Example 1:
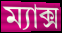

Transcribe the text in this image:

ম্যাক্স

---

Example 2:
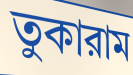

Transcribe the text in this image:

তুকারাম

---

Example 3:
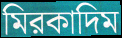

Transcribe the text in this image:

মিরকাদিম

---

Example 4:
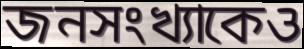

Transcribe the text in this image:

জনসংখ্যাকেও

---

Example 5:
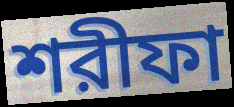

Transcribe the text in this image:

শরীফা